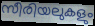
സീരിയലുകളും